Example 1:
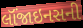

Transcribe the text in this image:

લૉંજાઇનસની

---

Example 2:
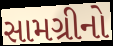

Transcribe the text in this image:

સામગ્રીનો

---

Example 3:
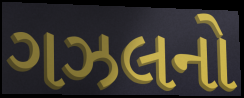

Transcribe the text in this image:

ગઝલનો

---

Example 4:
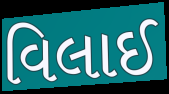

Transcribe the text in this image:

વિલાઈ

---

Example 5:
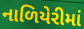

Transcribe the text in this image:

નાળિયેરીમાં